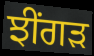
ਝੀਂਗੜ